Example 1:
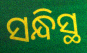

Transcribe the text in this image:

ସନ୍ଧିସ୍ଥ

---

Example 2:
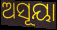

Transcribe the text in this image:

ଅସୂୟା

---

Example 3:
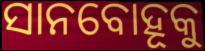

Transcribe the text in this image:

ସାନବୋହୂକୁ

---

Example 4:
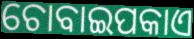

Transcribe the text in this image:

ଚୋବାଇପକାଏ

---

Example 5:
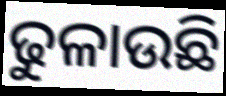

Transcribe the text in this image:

ଢୁଳାଉଛି